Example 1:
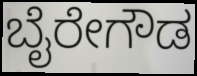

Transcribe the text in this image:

ಬೈರೇಗೌಡ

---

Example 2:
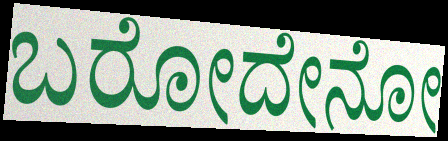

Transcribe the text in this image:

ಬರೋದೇನೋ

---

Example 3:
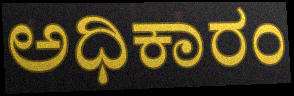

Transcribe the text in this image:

ಅಧಿಕಾರಂ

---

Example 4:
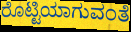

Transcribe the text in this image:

ರೊಟ್ಟಿಯಾಗುವಂತೆ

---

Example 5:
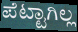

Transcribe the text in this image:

ಪೆಟ್ಟಾಗಿಲ್ಲ